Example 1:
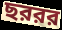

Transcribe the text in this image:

ছররর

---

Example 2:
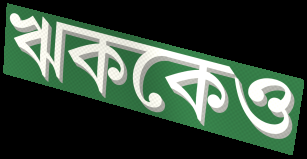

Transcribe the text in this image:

ঋককেও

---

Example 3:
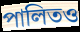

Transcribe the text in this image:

পালিতও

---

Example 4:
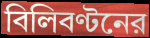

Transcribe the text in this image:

বিলিবণ্টনের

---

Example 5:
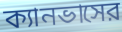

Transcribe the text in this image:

ক্যানভাসের